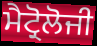
ਮੈਟ੍ਰੋਲੋਜੀ